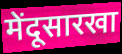
मेंदूसारखा